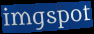
imgspot